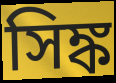
সিঙ্ক